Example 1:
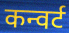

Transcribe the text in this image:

कन्वर्ट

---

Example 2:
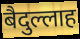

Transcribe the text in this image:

बैदुल्लाह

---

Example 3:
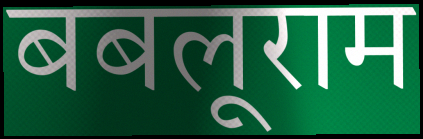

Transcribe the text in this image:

बबलूराम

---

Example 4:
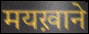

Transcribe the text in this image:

मयख़ाने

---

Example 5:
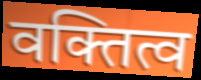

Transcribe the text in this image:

वक्तित्व